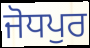
ਜੋਧਪੁਰ